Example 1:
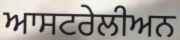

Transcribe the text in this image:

ਆਸਟਰੇਲੀਅਨ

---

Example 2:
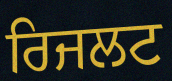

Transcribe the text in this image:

ਰਿਜਲਟ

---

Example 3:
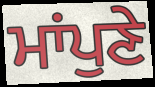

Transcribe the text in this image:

ਮਾਂਪੁਣੇ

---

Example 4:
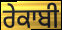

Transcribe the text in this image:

ਰੇਕਾਬੀ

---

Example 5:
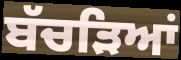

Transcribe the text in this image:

ਬੱਚੜਿਆਂ